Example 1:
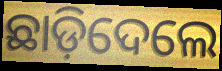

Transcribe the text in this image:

ଛାଡ଼ିଦେଲେ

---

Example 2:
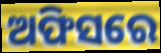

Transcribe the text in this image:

ଅଫିସରେ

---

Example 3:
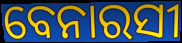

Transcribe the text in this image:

ବେନାରସୀ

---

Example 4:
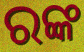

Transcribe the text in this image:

ରଙ୍କ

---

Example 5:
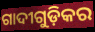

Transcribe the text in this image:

ଗାଦୀଗୁଡ଼ିକର